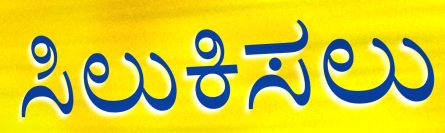
ಸಿಲುಕಿಸಲು